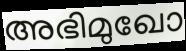
അഭിമുഖോ